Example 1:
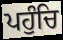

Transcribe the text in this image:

ਪਹੁੰਚਿ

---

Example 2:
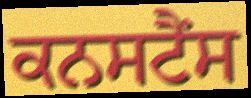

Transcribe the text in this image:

ਕਨਸਟੈਂਸ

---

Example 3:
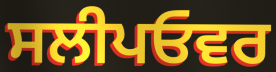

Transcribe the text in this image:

ਸਲੀਪਓਵਰ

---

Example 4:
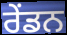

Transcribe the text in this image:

ਰੇਂਡਨ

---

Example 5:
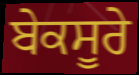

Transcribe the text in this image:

ਬੇਕਸੂਰੇ